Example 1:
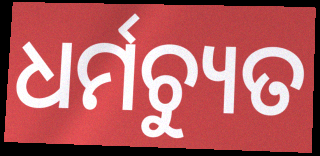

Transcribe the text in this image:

ଧର୍ମଚ୍ୟୁତ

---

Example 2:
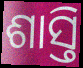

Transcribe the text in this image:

ଶାସ୍ତି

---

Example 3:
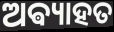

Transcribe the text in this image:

ଅଵ୍ୟାହତ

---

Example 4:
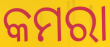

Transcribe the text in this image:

କମରା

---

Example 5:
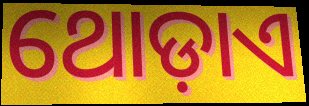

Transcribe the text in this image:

ଥୋଡ଼ାଏ